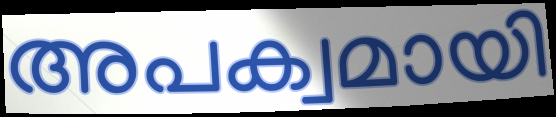
അപക്വമായി